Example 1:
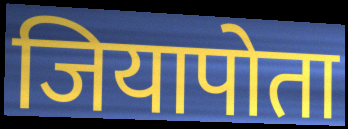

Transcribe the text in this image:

जियापोता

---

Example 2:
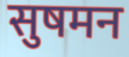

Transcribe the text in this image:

सुषमन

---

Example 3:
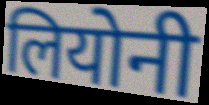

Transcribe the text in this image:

लियोनी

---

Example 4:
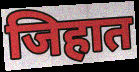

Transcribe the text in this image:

जिहात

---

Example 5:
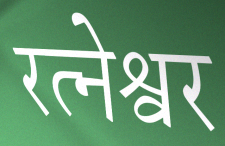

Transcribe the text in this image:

रत्नेश्वर